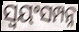
ସ୍ବୟଂସମ୍ପନ୍ନ